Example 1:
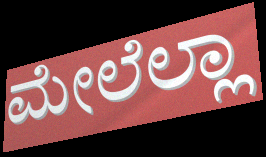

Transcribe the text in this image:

ಮೇಲೆಲ್ಲಾ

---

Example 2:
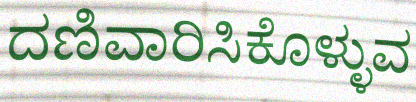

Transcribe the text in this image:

ದಣಿವಾರಿಸಿಕೊಳ್ಳುವ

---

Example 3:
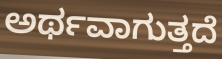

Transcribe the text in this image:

ಅರ್ಥವಾಗುತ್ತದೆ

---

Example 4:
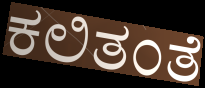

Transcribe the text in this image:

ಕಲಿತಂತೆ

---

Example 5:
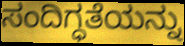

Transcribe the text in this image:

ಸಂದಿಗ್ಧತೆಯನ್ನು